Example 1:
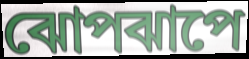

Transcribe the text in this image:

ঝোপঝাপে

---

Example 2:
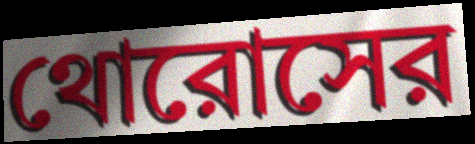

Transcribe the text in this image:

থোরোসের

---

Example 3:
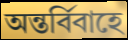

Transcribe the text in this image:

অন্তর্বিবাহে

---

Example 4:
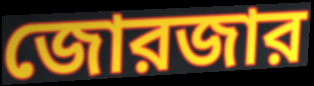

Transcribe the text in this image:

জোরজার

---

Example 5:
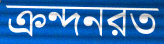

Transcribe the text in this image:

ক্রন্দনরত